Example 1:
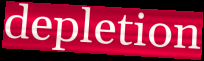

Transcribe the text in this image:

depletion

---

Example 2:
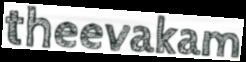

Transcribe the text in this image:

theevakam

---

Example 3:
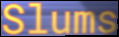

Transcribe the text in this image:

Slums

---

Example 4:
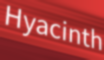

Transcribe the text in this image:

Hyacinth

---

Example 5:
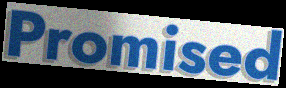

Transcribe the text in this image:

Promised